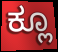
ಕ್ಲೂ